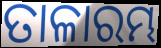
ତାଳାରମ୍ଭ